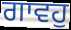
ਗਾਵਹੁ